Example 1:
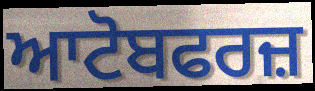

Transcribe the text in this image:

ਆਟੋਬਫਰਜ਼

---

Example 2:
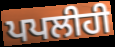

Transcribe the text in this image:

ਪਪਲੀਹੀ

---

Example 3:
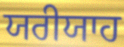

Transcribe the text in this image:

ਯਰੀਯਾਹ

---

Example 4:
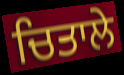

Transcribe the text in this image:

ਚਿਤਾਲੇ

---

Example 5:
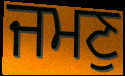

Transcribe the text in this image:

ਜਮਣੁ